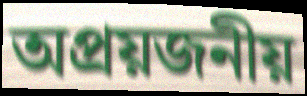
অপ্রয়জনীয়